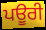
ਪਊਰੀ